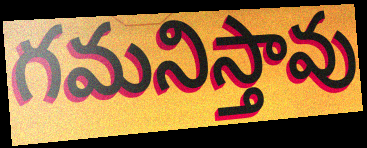
గమనిస్తావు